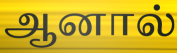
ஆனால்